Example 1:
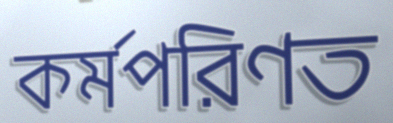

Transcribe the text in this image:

কর্মপরিণত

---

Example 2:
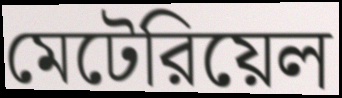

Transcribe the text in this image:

মেটেরিয়েল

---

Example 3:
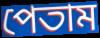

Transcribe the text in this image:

পেতাম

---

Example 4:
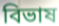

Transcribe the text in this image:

বিভাষ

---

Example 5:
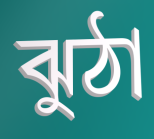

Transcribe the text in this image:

ঝুঠা